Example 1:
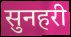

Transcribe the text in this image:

सुनहरी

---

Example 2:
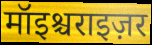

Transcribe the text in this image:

मॉइश्चराइज़र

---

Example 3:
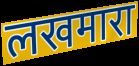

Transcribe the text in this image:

लखमारा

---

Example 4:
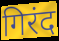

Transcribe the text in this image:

गिरंद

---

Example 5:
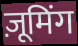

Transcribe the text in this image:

ज़ूमिंग